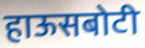
हाऊसबोटी